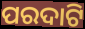
ପରଦାଟି